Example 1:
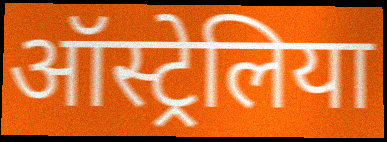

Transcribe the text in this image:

ऑस्ट्रेलिया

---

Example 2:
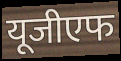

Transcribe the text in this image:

यूजीएफ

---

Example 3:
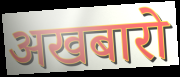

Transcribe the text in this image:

अखबारो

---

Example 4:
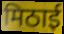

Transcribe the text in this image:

मिठाई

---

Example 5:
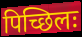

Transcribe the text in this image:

पिच्छिलः